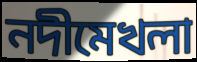
নদীমেখলা